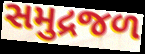
સમુદ્રજળ